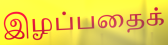
இழப்பதைக்